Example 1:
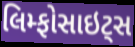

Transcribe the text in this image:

લિમ્ફોસાઇટ્સ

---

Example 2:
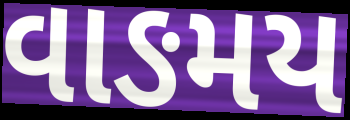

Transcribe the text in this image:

વાઙમય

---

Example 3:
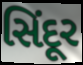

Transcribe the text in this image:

સિંદૂર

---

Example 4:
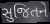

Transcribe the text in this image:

સુજિતને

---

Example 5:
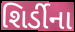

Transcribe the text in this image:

શિર્ડીના